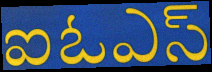
ఐఓఎస్